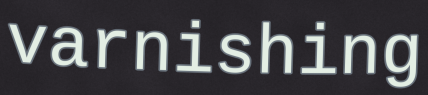
varnishing